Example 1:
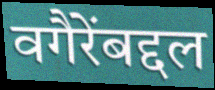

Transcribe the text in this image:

वगैरेंबद्दल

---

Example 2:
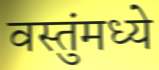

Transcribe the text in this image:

वस्तुंमध्ये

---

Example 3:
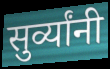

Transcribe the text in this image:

सुर्व्यांनी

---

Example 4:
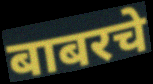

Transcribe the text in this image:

बाबरचे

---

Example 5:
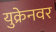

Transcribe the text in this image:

युक्रेनवर